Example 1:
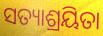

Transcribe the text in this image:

ସତ୍ୟାଶ୍ରୟିତା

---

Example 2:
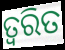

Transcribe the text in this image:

ତ୍ବରିତ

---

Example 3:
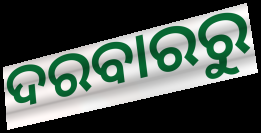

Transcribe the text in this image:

ଦରବାରରୁ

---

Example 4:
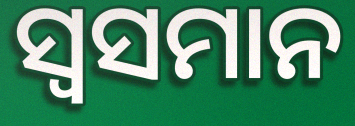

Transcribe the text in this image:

ସ୍ୱସମାନ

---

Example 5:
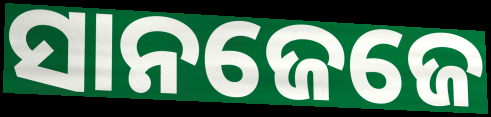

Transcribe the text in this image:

ସାନଜେଜେ